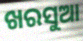
ଖରସୁଆ